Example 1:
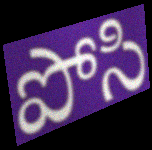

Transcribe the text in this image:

పోసి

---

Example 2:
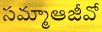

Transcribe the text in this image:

సమ్మాఆజీవో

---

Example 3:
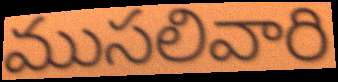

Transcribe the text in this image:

ముసలివారి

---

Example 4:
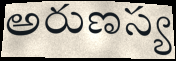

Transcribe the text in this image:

అరుణస్య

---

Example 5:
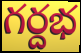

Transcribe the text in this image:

గర్దభ